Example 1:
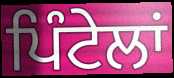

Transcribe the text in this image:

ਪਿੰਟੇਲਾਂ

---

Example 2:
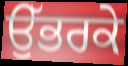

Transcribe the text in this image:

ਉੱਭਰਕੇ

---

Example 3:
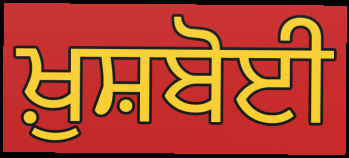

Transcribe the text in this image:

ਖ਼ੁਸ਼ਬੋਈ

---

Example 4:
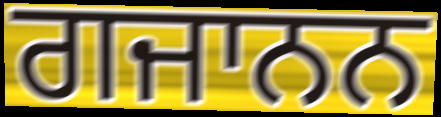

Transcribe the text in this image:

ਗਜਾਨਨ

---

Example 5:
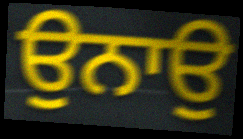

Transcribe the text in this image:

ਉਨਾਉ